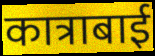
कात्राबाई